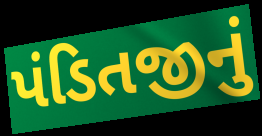
પંડિતજીનું